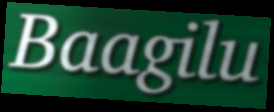
Baagilu